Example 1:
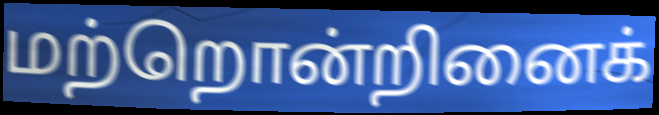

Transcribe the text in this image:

மற்றொன்றினைக்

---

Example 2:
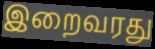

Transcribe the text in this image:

இறைவரது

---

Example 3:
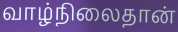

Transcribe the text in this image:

வாழ்நிலைதான்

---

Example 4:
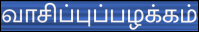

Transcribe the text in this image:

வாசிப்புப்பழக்கம்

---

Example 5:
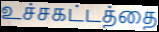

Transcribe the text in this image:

உச்சகட்டத்தை